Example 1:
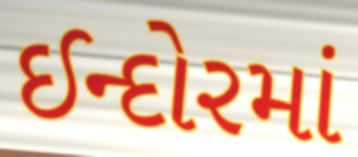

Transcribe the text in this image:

ઈન્દોરમાં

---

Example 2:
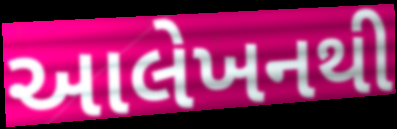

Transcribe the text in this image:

આલેખનથી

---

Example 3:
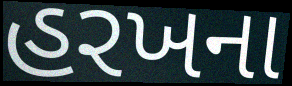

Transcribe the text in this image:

હરખના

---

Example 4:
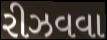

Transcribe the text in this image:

રીઝવવા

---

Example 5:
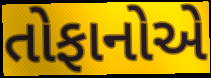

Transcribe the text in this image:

તોફાનોએ